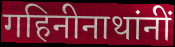
गहिनीनाथांनीं